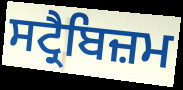
ਸਟ੍ਰੈਬਿਜ਼ਮ